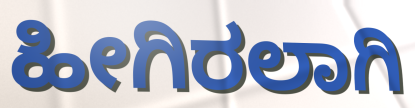
ಹೀಗಿರಲಾಗಿ